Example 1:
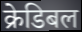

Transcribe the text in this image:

क्रेडिबल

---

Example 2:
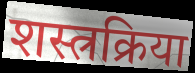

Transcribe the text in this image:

शस्त्रक्रिया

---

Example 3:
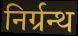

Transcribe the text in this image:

निर्ग्रन्थ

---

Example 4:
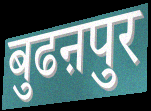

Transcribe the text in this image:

बुढऩपुर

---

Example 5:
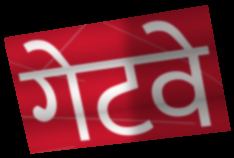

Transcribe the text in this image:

गेटवे